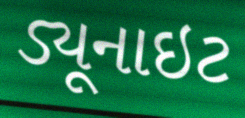
ડ્યૂનાઇટ